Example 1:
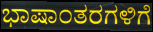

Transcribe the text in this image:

ಭಾಷಾಂತರಗಳಿಗೆ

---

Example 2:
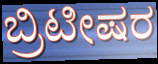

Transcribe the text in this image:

ಬ್ರಿಟೀಷರ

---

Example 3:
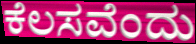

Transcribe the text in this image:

ಕೆಲಸವೆಂದು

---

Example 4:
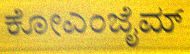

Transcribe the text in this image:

ಕೋಎಂಜೈಮ್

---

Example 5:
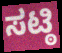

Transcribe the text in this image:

ಸಟ್ಠಿ